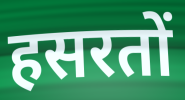
हसरतों